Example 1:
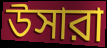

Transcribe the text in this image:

উসারা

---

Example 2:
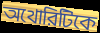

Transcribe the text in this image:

অথোরিটিকে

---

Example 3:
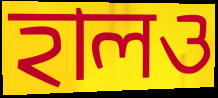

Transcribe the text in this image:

হালও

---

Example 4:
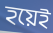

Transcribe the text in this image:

হয়েই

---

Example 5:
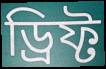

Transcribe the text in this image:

ড্রিফ্ট